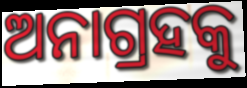
ଅନାଗ୍ରହକୁ